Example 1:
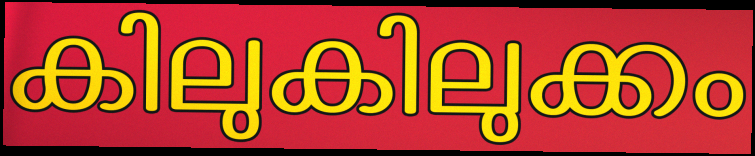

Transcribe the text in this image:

കിലുകിലുക്കം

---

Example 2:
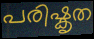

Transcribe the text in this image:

പരിഷ്കൃത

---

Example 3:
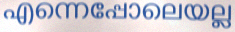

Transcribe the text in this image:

എന്നെപ്പോലെയല്ല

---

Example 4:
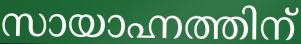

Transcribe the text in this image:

സായാഹ്നത്തിന്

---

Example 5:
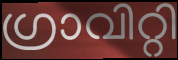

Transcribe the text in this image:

ഗ്രാവിറ്റി